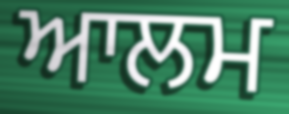
ਆਲਮ